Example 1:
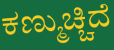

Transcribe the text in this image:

ಕಣ್ಮುಚ್ಚಿದೆ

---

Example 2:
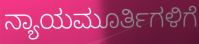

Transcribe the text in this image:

ನ್ಯಾಯಮೂರ್ತಿಗಳಿಗೆ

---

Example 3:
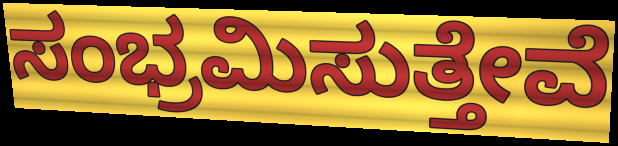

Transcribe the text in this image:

ಸಂಭ್ರಮಿಸುತ್ತೇವೆ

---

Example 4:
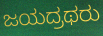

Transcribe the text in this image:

ಜಯದ್ರಥರು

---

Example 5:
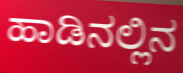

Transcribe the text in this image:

ಹಾಡಿನಲ್ಲಿನ